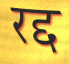
रद्द